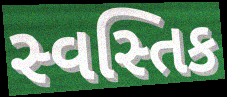
સ્વસ્તિક